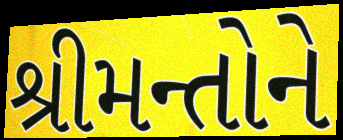
શ્રીમન્તોને